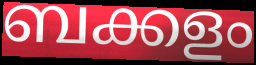
ബക്കളം